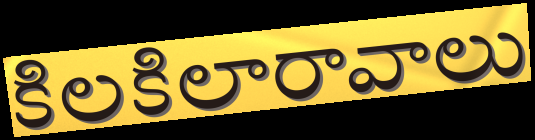
కిలకిలారావాలు